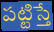
పట్టిస్తే